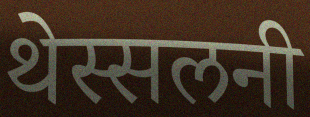
थेस्सलनी